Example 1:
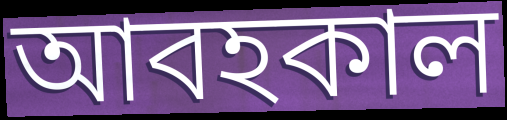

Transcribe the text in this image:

আবহকাল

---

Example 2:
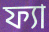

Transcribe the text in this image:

ফ্যা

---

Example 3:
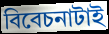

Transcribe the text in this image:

বিবেচনাটাই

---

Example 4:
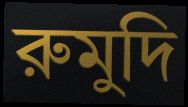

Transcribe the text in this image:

রুমুদি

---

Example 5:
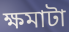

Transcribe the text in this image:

ক্ষমাটা